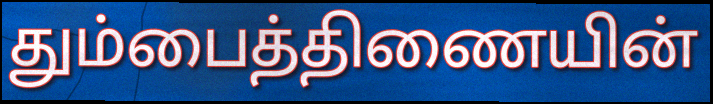
தும்பைத்திணையின்